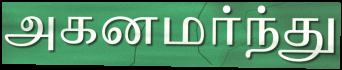
அகனமர்ந்து